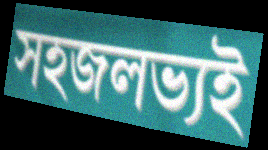
সহজলভ্যই